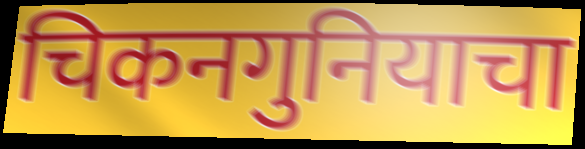
चिकनगुनियाचा